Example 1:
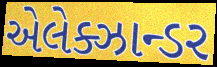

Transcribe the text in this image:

એલેક્ઝાન્ડર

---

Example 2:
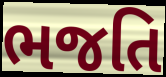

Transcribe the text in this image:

ભજતિ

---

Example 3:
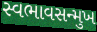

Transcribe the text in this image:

સ્વભાવસન્મુખ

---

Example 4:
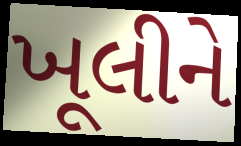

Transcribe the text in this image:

ખૂલીને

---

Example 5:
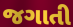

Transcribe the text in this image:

જગાતી